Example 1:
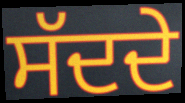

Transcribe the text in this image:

ਸੱਦਦੇ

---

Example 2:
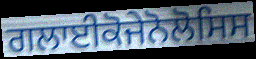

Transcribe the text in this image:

ਗਲਾਈਕੋਜੇਨੋਲੋਸਿਸ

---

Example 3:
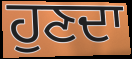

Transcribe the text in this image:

ਹੁਣਦਾ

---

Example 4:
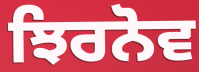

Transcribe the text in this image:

ਝਿਰਨੋਵ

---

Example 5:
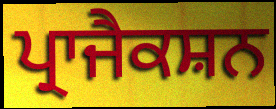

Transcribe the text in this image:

ਪ੍ਰਾਜੈਕਸ਼ਨ